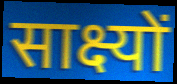
साक्ष्यों